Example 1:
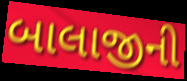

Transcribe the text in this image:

બાલાજીની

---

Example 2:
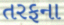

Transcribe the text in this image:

તરફના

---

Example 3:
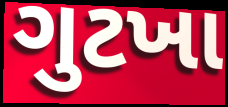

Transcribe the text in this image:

ગુટખા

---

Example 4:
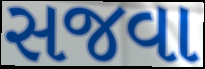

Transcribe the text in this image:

સજવા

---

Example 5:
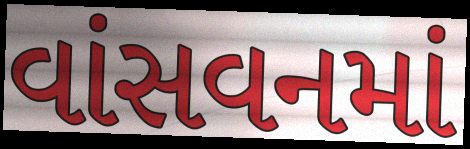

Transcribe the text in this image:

વાંસવનમાં